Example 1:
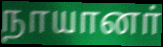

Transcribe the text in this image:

நாயானர்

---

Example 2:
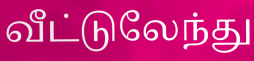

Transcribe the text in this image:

வீட்டுலேந்து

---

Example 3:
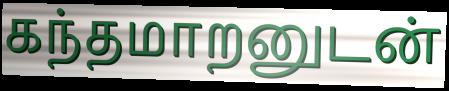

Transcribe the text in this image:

கந்தமாறனுடன்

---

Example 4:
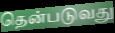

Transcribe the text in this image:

தென்படுவது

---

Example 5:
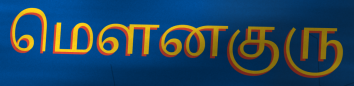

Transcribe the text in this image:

மௌனகுரு